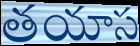
తయాస